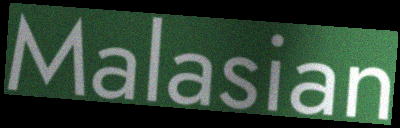
Malasian